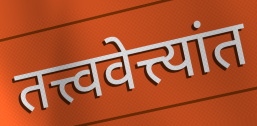
तत्त्ववेत्त्यांत